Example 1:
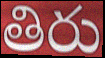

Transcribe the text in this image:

తిరు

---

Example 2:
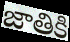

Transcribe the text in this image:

జాతికి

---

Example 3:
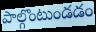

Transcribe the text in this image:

పాల్గొంటుండడం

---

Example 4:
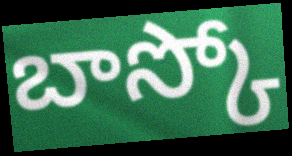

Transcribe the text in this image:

బాస్కో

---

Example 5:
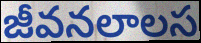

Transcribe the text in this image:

జీవనలాలస